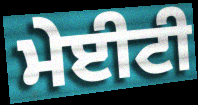
ਮੇਈਟੀ